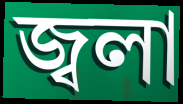
জ্বলা